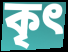
কৃৎ